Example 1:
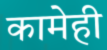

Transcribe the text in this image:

कामेही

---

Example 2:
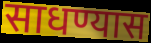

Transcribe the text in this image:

साधण्यास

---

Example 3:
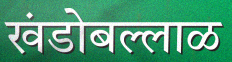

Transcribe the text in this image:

खंडोबल्लाळ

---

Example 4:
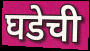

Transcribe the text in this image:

घडेची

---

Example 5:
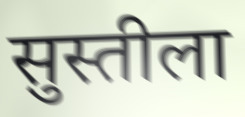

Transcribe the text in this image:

सुस्तीला